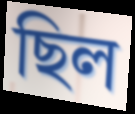
ছিল